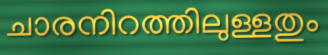
ചാരനിറത്തിലുള്ളതും